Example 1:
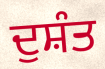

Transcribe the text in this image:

ਦੁਸ਼ੰਤ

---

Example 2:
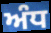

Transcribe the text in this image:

ਅੰਧ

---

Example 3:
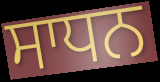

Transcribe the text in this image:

ਸਾਧਨ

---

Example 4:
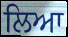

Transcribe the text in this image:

ਲਿਆ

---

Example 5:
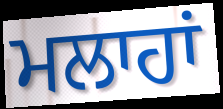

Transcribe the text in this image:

ਮਲਾਹਾਂ